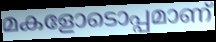
മകളോടൊപ്പമാണ്